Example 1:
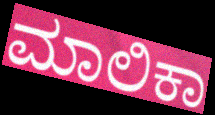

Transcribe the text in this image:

ಮಾಲಿಕಾ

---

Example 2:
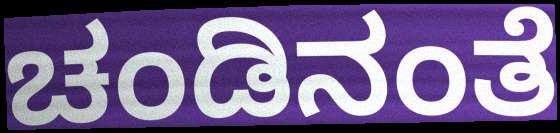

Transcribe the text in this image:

ಚಂಡಿನಂತೆ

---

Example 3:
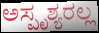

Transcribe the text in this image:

ಅಸ್ಪೃಶ್ಯರಲ್ಲ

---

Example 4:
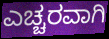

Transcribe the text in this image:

ಎಚ್ಚರವಾಗಿ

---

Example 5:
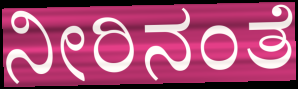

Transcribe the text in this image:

ನೀರಿನಂತೆ